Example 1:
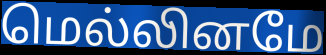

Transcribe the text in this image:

மெல்லினமே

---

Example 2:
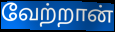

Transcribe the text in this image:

வேற்றான்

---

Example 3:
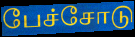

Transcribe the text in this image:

பேச்சோடு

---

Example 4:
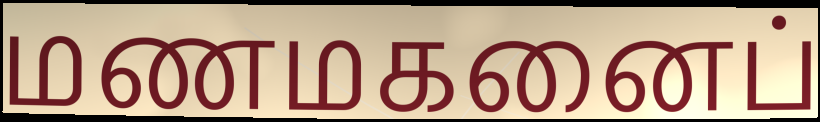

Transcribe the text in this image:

மணமகனைப்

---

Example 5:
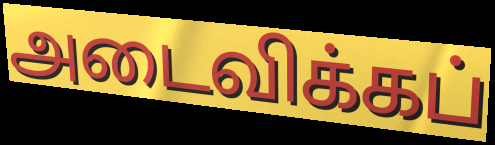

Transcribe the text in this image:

அடைவிக்கப்